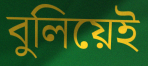
বুলিয়েই